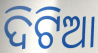
ଦିଟିଆ